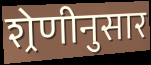
श्रेणीनुसार